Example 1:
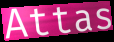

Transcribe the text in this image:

Attas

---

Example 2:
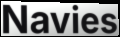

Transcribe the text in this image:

Navies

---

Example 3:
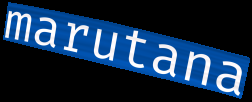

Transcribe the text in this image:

marutana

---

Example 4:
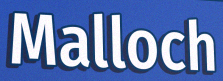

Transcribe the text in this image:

Malloch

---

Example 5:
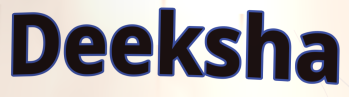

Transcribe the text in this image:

Deeksha